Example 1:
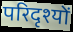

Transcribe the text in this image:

परिदृश्यों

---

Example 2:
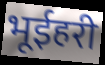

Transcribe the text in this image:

भूईहरी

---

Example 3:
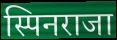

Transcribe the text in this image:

स्पिनराजा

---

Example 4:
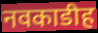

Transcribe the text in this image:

नवकाडीह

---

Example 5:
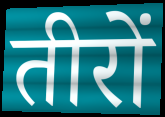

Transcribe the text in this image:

तीरों